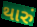
થારું